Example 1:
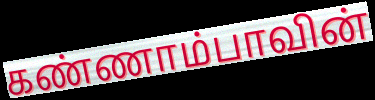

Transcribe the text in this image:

கண்ணாம்பாவின்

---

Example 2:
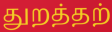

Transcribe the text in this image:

துறத்தற்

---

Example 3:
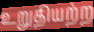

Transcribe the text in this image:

உறுதியற்ற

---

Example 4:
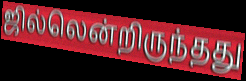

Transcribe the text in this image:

ஜில்லென்றிருந்தது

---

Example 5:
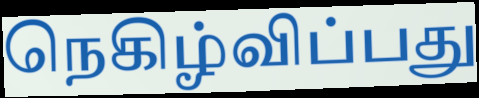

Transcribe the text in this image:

நெகிழ்விப்பது